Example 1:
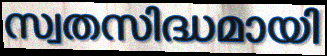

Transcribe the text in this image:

സ്വതസിദ്ധമായി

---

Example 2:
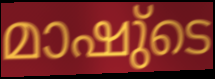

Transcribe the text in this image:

മാഷു്ടെ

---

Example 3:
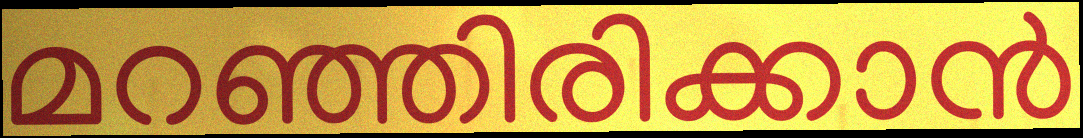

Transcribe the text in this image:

മറഞ്ഞിരിക്കാൻ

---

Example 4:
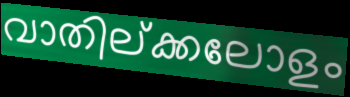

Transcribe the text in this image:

വാതില്ക്കലോളം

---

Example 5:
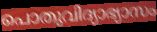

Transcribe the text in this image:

പൊതുവിദ്യാഭ്യാസം